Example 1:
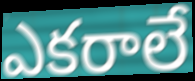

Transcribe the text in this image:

ఎకరాలే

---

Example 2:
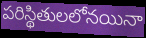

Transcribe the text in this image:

పరిస్థితులలోనయినా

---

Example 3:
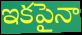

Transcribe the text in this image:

ఇకపైనా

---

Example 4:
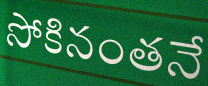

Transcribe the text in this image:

సోకినంతనే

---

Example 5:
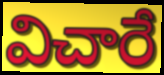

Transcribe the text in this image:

విచారే